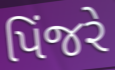
પિંજરે